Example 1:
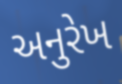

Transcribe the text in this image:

અનુરેખ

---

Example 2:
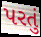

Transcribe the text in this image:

પરતું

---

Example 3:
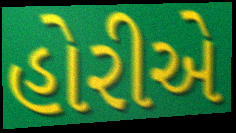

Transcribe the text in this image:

હોરીએ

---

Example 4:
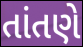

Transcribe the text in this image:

તાંતણે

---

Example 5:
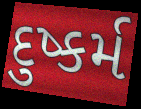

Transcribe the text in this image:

દુષ્કર્મ